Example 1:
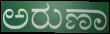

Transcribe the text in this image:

ಅರುಣಾ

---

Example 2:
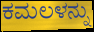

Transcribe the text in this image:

ಕಮಲಳನ್ನು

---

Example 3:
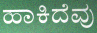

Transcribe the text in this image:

ಹಾಕಿದೆವು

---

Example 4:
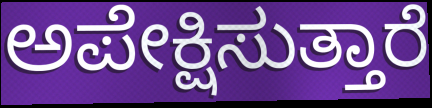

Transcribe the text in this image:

ಅಪೇಕ್ಷಿಸುತ್ತಾರೆ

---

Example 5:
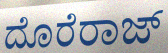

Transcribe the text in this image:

ದೊರೆರಾಜ್